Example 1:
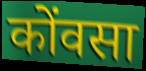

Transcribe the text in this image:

कोंवसा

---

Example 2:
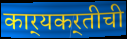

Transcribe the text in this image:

कार्यकर्तीची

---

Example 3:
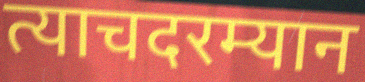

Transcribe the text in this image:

त्याचदरम्यान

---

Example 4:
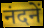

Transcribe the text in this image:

नंदनें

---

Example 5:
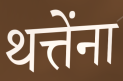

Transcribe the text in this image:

थत्तेंना